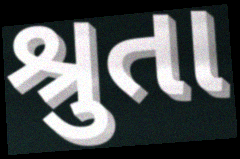
શ્રુતા